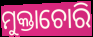
ମୁକ୍ତାଚୋରି